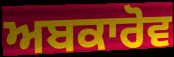
ਅਬਕਾਰੋਵ